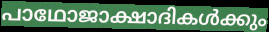
പാഥോജാക്ഷാദികൾക്കും